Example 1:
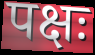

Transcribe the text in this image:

पक्षः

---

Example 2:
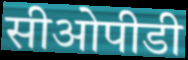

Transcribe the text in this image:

सीओपीडी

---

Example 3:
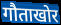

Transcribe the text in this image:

गौताखोर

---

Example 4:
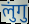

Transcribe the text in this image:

लुंगु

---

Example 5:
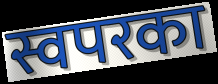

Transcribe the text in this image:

स्वपरका